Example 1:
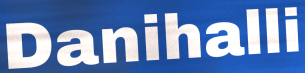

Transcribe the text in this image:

Danihalli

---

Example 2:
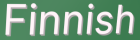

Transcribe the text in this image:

Finnish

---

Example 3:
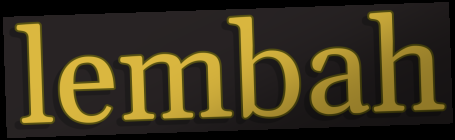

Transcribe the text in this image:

lembah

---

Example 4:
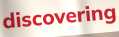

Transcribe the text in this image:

discovering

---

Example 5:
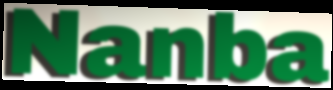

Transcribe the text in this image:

Nanba